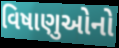
વિષાણુઓનો